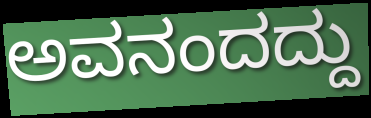
ಅವನಂದದ್ದು